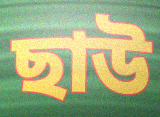
ছাউ